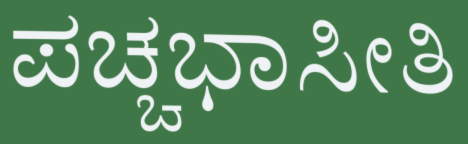
ಪಚ್ಚಭಾಸೀತಿ